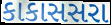
કાકાસસરા